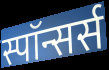
स्पॉन्सर्स